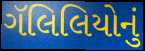
ગૅલિલિયોનું